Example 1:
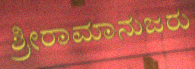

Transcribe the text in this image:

ಶ್ರೀರಾಮಾನುಜರು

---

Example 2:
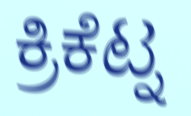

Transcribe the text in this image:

ಕ್ರಿಕೆಟ್ನ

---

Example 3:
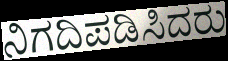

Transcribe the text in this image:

ನಿಗದಿಪಡಿಸಿದರು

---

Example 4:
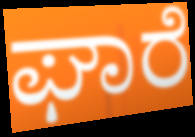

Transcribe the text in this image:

ಘಾರೆ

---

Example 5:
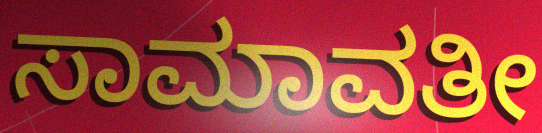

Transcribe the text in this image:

ಸಾಮಾವತೀ